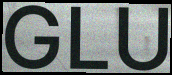
GLU